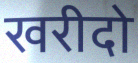
खरीदो